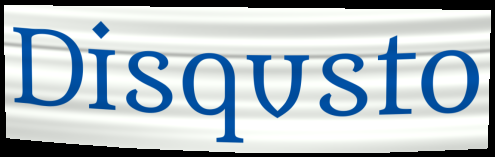
Disqusto